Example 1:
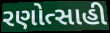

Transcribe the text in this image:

રણોત્સાહી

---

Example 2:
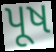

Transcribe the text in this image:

પૂષ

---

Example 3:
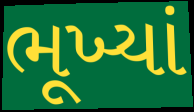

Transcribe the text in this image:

ભૂખ્યાં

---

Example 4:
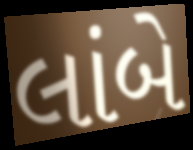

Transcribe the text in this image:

લાંબે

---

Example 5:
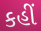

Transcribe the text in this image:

કહીં